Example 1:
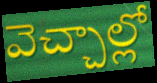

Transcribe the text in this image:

వెచ్చాల్లో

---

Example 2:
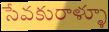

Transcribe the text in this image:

సేవకురాళ్ళూ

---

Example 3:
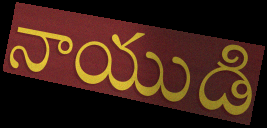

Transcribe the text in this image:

నాయుడి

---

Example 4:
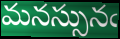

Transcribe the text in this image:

మనస్సునఁ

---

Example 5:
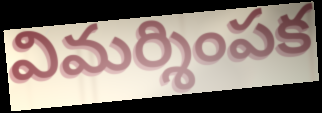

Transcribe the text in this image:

విమర్శింపక